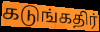
கடுங்கதிர்